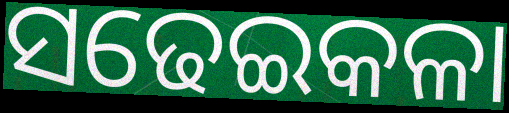
ସଢେଇକଳା